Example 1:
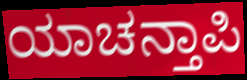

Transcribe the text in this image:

ಯಾಚನ್ತಾಪಿ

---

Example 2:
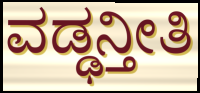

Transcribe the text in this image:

ವಡ್ಢನ್ತೀತಿ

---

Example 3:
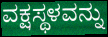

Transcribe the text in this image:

ವಕ್ಷಸ್ಥಳವನ್ನು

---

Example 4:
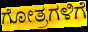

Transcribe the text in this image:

ಗೋತ್ರಗಳಿಗೆ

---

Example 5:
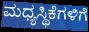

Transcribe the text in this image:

ಮಧ್ಯಸ್ಥಿಕೆಗಳಿಗೆ